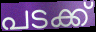
പടക്ക്